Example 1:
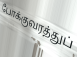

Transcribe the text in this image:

போக்குவரத்துப்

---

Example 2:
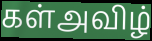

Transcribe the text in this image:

கள்அவிழ்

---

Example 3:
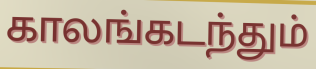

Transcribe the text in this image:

காலங்கடந்தும்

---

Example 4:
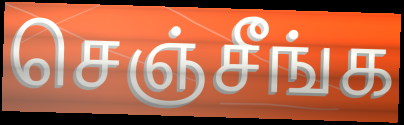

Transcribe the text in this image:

செஞ்சீங்க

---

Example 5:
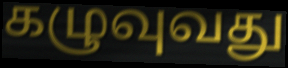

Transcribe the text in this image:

கழுவுவது